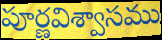
పూర్ణవిశ్వాసము